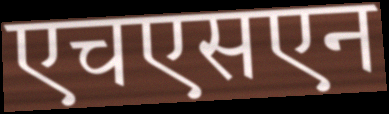
एचएसएन